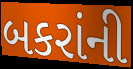
બકરાંની